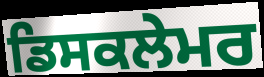
ਡਿਸਕਲੇਮਰ